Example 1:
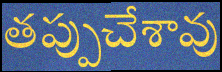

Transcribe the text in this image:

తప్పుచేశావు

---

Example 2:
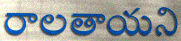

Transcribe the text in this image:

రాలతాయని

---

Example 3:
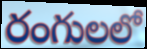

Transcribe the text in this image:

రంగులలో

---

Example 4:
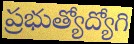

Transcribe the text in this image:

ప్రభుత్యోద్యోగి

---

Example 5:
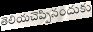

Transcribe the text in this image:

తెలియచెప్పినందుకు